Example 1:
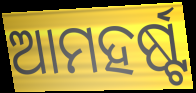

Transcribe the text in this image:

ଆମହର୍ଷ୍ଟ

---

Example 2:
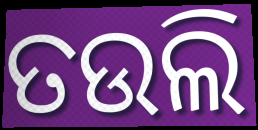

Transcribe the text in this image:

ତଉଲି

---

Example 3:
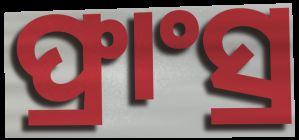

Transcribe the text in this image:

ଫ୍ରାଂସ୍ର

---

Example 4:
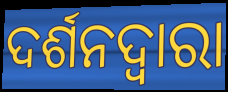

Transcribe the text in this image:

ଦର୍ଶନଦ୍ୱାରା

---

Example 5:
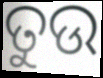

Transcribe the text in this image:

ତୁଉ